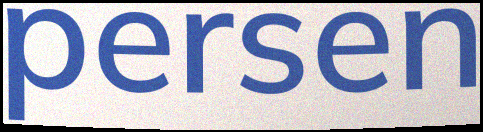
persen